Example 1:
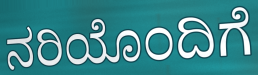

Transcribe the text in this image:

ನರಿಯೊಂದಿಗೆ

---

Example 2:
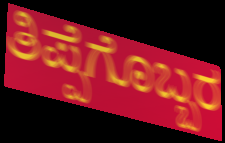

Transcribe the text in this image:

ತಿಪ್ಪೆಗೊಬ್ಬರ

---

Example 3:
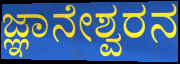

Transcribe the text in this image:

ಜ್ಞಾನೇಶ್ವರನ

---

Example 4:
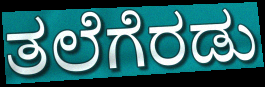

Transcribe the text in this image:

ತಲೆಗೆರಡು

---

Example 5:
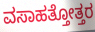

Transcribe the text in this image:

ವಸಾಹತ್ತೋತ್ತರ